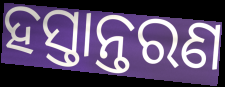
ହସ୍ତାନ୍ତରଣ